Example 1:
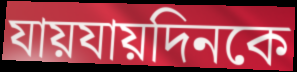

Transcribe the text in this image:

যায়যায়দিনকে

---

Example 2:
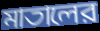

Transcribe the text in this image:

মাতালের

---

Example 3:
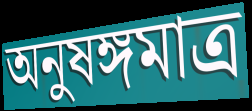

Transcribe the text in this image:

অনুষঙ্গমাত্র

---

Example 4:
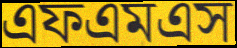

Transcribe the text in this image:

এফএমএস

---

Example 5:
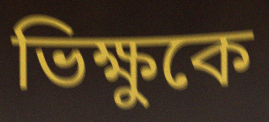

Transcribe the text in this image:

ভিক্ষুকে